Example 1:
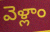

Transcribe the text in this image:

వెళ్లాం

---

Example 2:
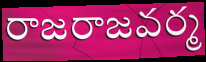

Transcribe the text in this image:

రాజరాజవర్మ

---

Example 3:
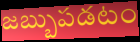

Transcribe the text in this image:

జబ్బుపడటం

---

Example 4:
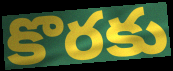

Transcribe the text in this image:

కొరకు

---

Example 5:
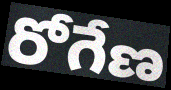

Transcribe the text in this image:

రోగేణ